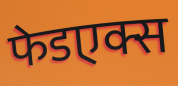
फेडएक्स